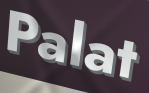
Palat